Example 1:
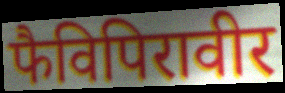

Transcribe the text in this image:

फैविपिरावीर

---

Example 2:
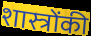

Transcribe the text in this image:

शास्त्रोंकी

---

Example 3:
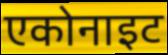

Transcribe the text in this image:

एकोनाइट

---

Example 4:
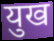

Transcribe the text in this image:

युख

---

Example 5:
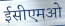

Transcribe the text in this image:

ईसीएमओ